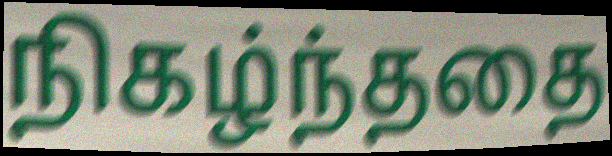
நிகழ்ந்ததை